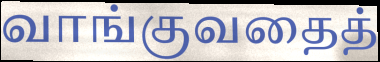
வாங்குவதைத்